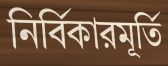
নির্বিকারমূর্তি